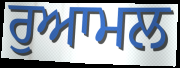
ਰੁਆਮਲ